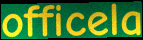
officela